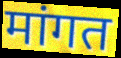
मांगत